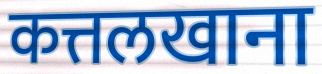
कत्तलखाना